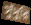
সুঁদুরি